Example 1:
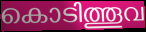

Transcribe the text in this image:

കൊടിത്തൂവ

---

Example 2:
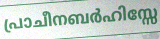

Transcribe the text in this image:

പ്രാചീനബർഹിസ്സേ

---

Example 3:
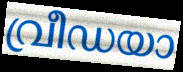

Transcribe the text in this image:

വ്രീഡയാ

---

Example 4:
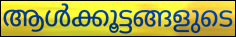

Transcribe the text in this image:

ആൾക്കൂട്ടങ്ങളുടെ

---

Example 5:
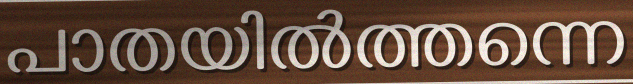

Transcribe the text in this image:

പാതയിൽത്തന്നെ